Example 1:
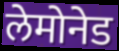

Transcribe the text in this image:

लेमोनेड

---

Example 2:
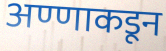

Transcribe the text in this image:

अण्णाकडून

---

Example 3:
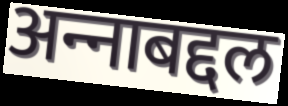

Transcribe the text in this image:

अन्‍नाबद्दल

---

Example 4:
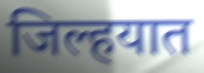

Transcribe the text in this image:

जिल्हयात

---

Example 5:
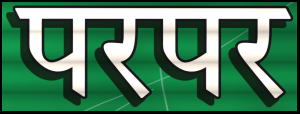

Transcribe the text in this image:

परपर